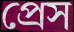
প্রেস